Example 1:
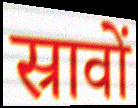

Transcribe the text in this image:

स्रावों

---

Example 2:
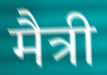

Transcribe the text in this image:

मैत्री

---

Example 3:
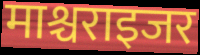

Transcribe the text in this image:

माश्चराइजर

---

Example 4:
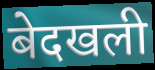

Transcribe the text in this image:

बेदखली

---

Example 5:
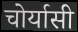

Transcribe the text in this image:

चोर्यासी